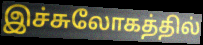
இச்சுலோகத்தில்